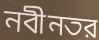
নবীনতর